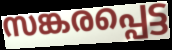
സങ്കരപ്പെട്ട